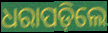
ଧରାପଡ଼ିଲେ